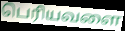
பெரியவளை